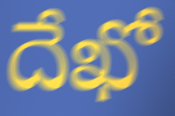
దేఖో